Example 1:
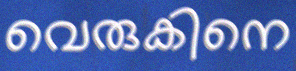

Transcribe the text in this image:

വെരുകിനെ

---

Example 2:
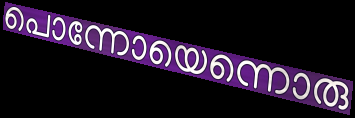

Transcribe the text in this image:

പൊന്നോയെന്നൊരു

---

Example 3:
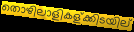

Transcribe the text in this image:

തൊഴിലാളികള്ക്കിടയില്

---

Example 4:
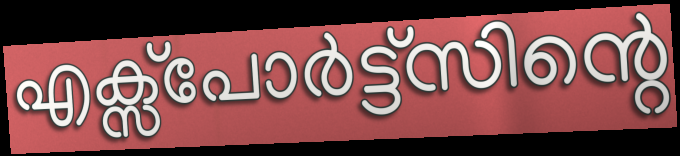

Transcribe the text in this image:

എക്സ്പോർട്ട്സിന്റെ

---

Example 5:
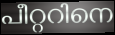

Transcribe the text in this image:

പീറ്ററിനെ